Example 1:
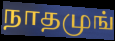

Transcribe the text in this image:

நாதமுங்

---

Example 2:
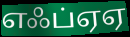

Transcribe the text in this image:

எஃப்ஏஏ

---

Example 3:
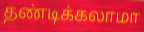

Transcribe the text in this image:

தண்டிக்கலாமா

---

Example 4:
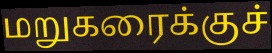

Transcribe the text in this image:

மறுகரைக்குச்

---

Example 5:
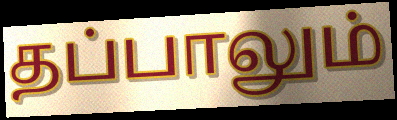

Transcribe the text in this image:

தப்பாலும்